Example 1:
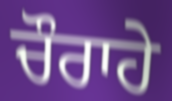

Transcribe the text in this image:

ਚੌਰਾਹੇ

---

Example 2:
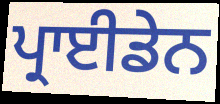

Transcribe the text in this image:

ਪ੍ਰਾਈਡੇਨ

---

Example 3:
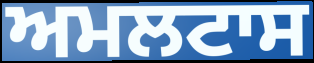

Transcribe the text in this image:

ਅਮਲਟਾਸ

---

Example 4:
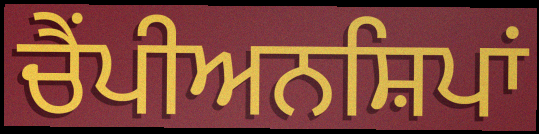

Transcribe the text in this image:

ਚੈਂਪੀਅਨਸ਼ਿਪਾਂ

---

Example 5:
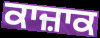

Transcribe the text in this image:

ਕਾਜ਼ਾਕ